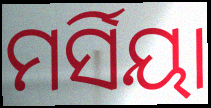
ମର୍ସିୟା